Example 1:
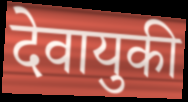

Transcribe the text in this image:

देवायुकी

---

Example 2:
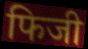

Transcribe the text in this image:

फिजी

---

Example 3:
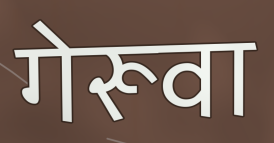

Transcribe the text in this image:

गेरूवा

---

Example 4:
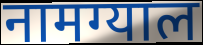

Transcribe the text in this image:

नामग्याल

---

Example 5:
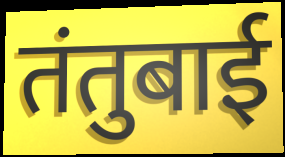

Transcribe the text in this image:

तंतुबाई